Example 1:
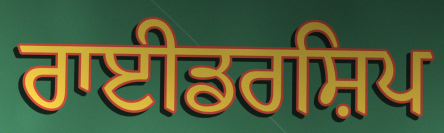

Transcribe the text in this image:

ਰਾਈਡਰਸ਼ਿਪ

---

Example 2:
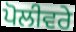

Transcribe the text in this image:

ਪੋਲੀਵਰੇ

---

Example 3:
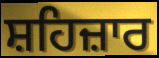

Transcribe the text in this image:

ਸ਼ਹਿਜ਼ਾਰ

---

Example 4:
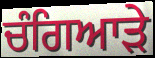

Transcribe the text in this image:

ਚੰਗਿਆੜੇ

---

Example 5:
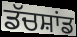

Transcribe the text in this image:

ਡੱਚਸ਼ਾਂਡ